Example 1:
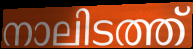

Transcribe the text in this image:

നാലിടത്ത്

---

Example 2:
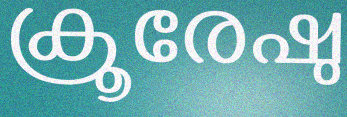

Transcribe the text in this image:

ക്രൂരേഷു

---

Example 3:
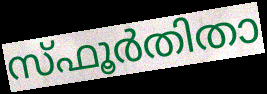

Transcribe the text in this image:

സ്ഫൂർതിതാ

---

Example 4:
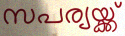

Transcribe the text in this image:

സപര്യയ്ക്ക്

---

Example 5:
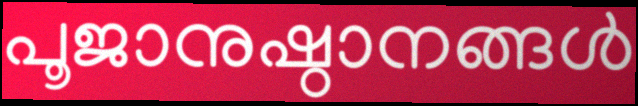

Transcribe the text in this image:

പൂജാനുഷ്ഠാനങ്ങൾ